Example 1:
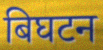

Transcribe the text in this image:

बिघटन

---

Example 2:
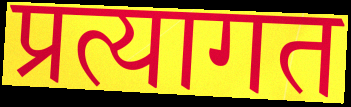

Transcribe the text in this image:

प्रत्यागत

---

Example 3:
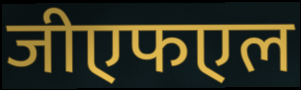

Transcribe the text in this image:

जीएफएल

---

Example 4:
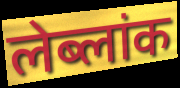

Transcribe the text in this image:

लेब्लांक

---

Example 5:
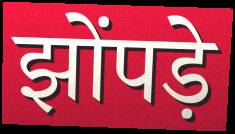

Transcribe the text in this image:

झोंपड़े